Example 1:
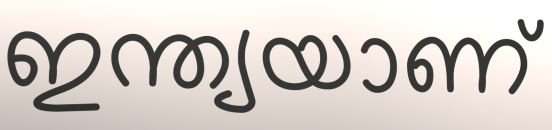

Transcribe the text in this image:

ഇന്ത്യയാണ്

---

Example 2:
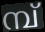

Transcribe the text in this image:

മ്പ്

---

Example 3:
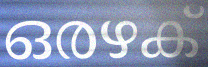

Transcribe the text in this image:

ഒരഴക്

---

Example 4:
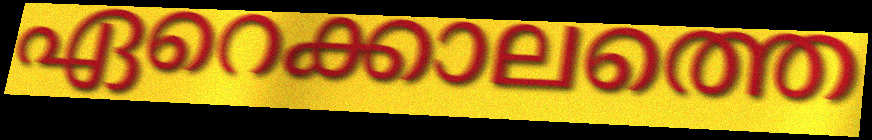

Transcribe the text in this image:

ഏറെക്കാലത്തെ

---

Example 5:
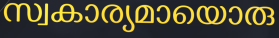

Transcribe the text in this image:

സ്വകാര്യമായൊരു